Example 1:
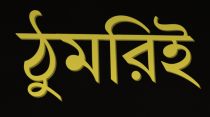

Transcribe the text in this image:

ঠুমরিই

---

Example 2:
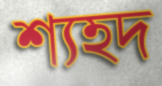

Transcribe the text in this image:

শ্যহদ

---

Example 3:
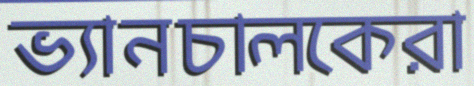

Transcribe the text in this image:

ভ্যানচালকেরা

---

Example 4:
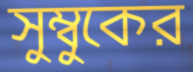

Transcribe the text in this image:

সুম্বুকের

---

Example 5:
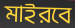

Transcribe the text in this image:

মাইরবে